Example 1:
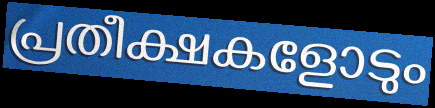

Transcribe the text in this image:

പ്രതീക്ഷകളോടും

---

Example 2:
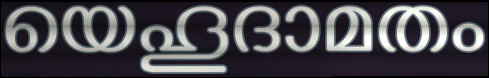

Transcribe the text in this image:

യെഹൂദാമതം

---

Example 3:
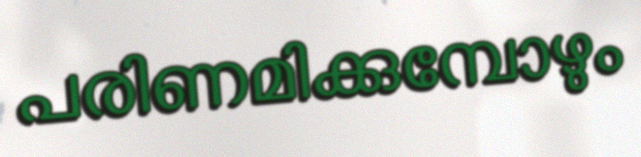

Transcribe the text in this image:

പരിണമിക്കുമ്പോഴും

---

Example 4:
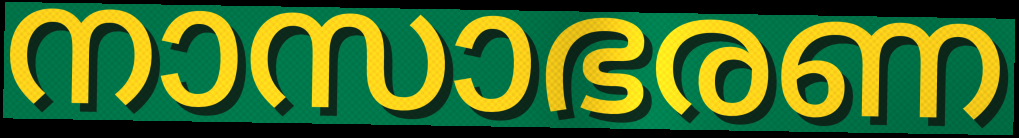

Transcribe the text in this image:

നാസാഭരണ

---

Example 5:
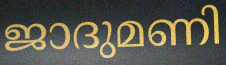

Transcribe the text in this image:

ജാദുമണി